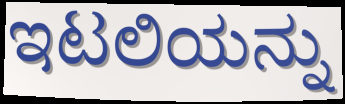
ಇಟಲಿಯನ್ನು